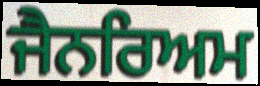
ਜੈਨਰਿਅਮ